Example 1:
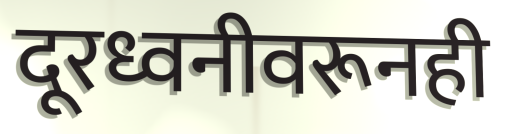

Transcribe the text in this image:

दूरध्वनीवरूनही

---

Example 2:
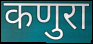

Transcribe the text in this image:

कणुरा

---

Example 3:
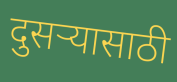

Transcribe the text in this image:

दुसऱ्यासाठी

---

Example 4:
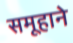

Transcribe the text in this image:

समूहाने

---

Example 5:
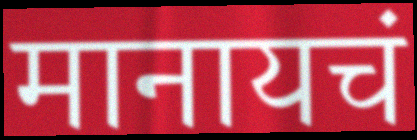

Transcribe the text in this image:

मानायचं